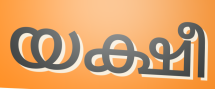
യക്ഷീ